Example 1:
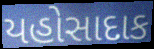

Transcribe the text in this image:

યહોસાદાક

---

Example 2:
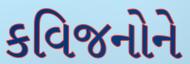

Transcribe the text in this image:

કવિજનોને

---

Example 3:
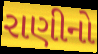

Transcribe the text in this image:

રાણીનો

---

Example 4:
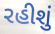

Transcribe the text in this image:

રહીશું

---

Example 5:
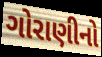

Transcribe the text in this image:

ગોરાણીનો